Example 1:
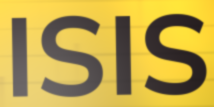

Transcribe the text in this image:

ISIS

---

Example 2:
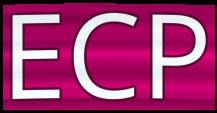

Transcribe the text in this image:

ECP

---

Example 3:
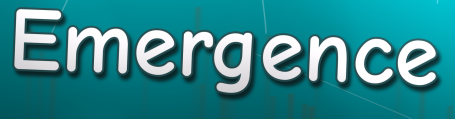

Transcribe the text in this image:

Emergence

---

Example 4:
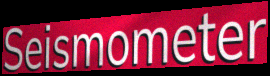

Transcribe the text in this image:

Seismometer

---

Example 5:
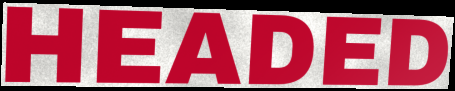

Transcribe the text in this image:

HEADED